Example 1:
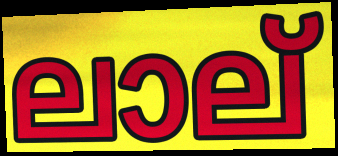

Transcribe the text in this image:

ലാല്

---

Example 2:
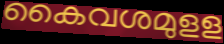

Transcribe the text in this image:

കൈവശമുളള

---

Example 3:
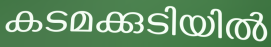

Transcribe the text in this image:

കടമക്കുടിയിൽ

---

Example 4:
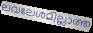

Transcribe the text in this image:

ലവലേശമില്ലാത്ത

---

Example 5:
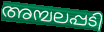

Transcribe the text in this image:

അമ്പലപ്പടി